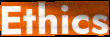
Ethics